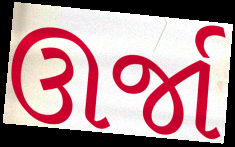
ઊર્જા